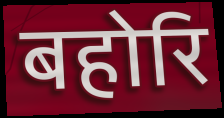
बहोरि